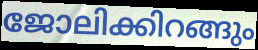
ജോലിക്കിറങ്ങും